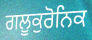
ਗਲੂਕੁਰੋਨਿਕ